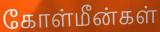
கோள்மீன்கள்